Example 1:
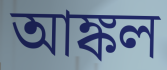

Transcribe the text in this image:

আঙ্কল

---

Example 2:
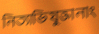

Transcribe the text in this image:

নিত্যাভিযুক্তানাং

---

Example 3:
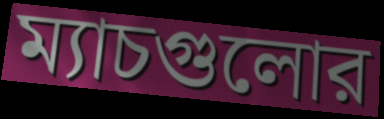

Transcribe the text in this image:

ম্যাচগুলোর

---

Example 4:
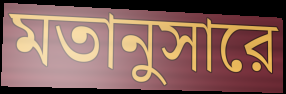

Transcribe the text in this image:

মতানুসারে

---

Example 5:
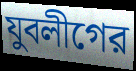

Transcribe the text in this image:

যুবলীগের